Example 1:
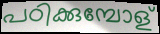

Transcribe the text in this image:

പഠിക്കുമ്പോള്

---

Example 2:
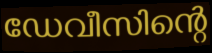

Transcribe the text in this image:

ഡേവീസിന്റെ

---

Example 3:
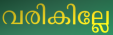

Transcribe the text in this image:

വരികില്ലേ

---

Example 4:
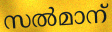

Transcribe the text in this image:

സൽമാന്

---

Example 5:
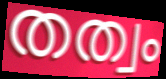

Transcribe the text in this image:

തത്വം